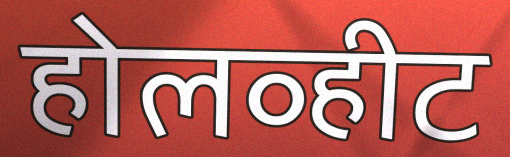
होलव्हीट